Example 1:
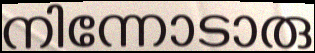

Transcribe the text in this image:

നിന്നോടാരു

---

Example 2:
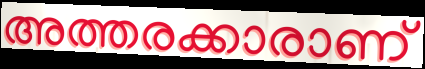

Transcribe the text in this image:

അത്തരക്കാരാണ്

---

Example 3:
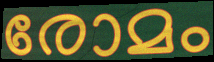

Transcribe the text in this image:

രോമം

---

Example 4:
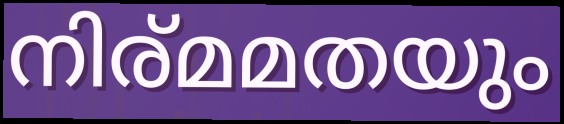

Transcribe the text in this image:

നിര്മമതയും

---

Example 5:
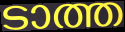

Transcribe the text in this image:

ടാത്ത